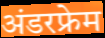
अंडरफ्रेम